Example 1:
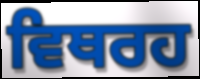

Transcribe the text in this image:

ਵਿਥਰਹ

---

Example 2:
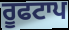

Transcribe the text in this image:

ਰੂਫਟਾਪ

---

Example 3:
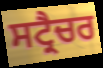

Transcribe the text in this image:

ਸਟ੍ਰੈਚਰ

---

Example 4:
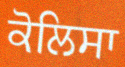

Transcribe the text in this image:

ਕੋਲਿਸਾ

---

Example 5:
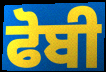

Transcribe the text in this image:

ਫੋਬੀ